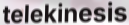
telekinesis